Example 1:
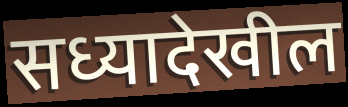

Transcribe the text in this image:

सध्यादेखील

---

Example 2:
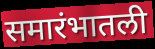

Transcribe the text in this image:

समारंभातली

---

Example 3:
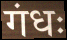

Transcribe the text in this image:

गंधः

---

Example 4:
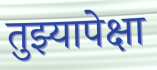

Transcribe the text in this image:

तुझ्यापेक्षा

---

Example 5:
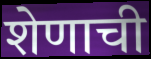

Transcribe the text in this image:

शेणाची